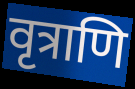
वृत्राणि